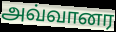
அவ்வானர